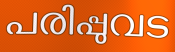
പരിപ്പുവട